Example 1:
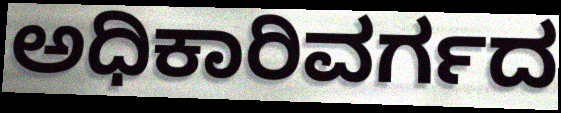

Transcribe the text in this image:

ಅಧಿಕಾರಿವರ್ಗದ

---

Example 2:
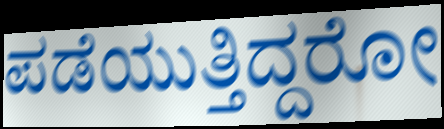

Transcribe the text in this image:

ಪಡೆಯುತ್ತಿದ್ದರೋ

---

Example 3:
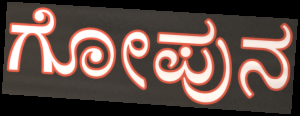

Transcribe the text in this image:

ಗೋಪುನ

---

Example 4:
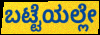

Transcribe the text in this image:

ಬಟ್ಟೆಯಲ್ಲೇ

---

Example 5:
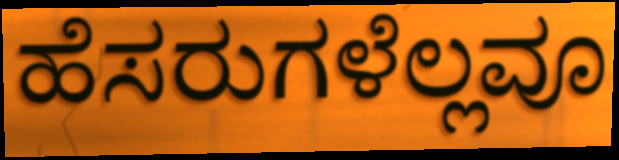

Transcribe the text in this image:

ಹೆಸರುಗಳೆಲ್ಲವೂ